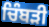
ਚਿੰਬੜੀ